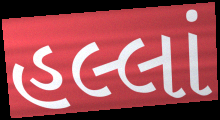
હલ્લાં